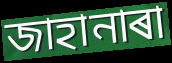
জাহানাৰা